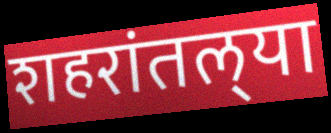
शहरांतल्या